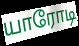
யாரோடி